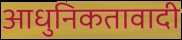
आधुनिकतावादी